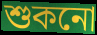
শুকনো